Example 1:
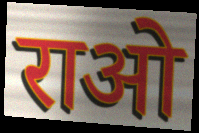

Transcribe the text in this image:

राओ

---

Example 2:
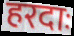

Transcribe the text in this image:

हरदाः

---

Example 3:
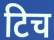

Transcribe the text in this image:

टिच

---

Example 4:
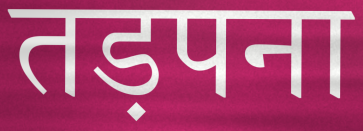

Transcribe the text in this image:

तड़पना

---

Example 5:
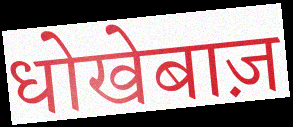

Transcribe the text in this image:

धोखेबाज़